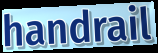
handrail